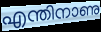
എന്തിനാണു